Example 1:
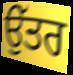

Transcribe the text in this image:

ਉੱਤਰ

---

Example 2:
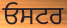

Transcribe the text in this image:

ਓਸਟਰ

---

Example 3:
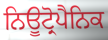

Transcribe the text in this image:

ਨਿਊਟ੍ਰੋਪੈਨਿਕ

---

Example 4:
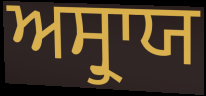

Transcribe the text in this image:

ਅਸ੍ਤ੍ਰਾਯ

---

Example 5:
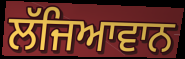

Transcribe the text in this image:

ਲੱਜਿਆਵਾਨ